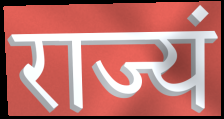
राज्यं